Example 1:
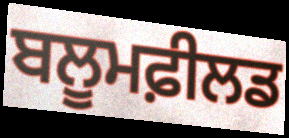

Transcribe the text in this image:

ਬਲੂਮਫ਼ੀਲਡ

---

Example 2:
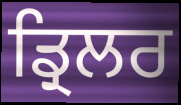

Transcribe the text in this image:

ਡ੍ਰਿਲਰ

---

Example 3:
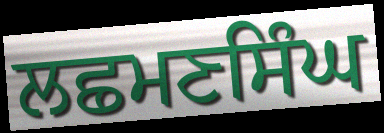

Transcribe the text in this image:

ਲਛਮਣਸਿੰਘ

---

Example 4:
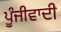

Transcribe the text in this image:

ਪੂੰਜੀਵਾਦੀ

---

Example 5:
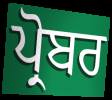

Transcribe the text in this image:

ਪ੍ਰੋਬਰ